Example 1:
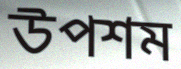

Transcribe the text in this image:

উপশম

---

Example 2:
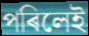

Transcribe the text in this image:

পৰিলেই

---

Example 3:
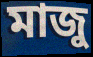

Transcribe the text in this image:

মাজু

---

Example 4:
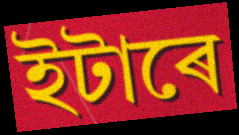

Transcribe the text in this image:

ইটাৰে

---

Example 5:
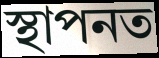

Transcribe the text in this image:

স্থাপনত